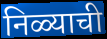
निळ्याची